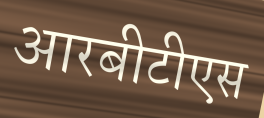
आरबीटीएस